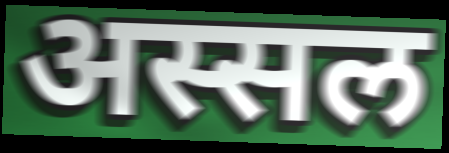
अस्सल